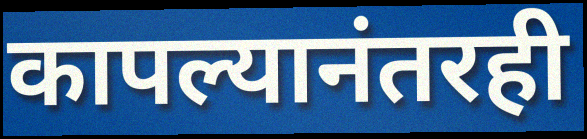
कापल्यानंतरही